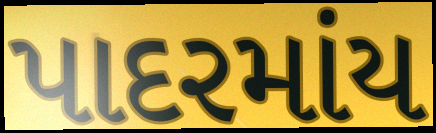
પાદરમાંય